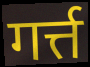
गर्त्त